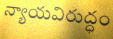
న్యాయవిరుద్ధం